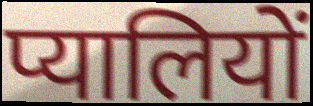
प्यालियों